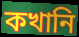
কখানি